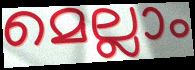
മെല്ലാം